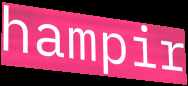
hampir